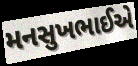
મનસુખભાઈએ